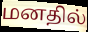
மனதில்